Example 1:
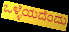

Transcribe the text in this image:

ಒಳ್ಳೆಯದೆಂದು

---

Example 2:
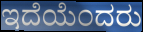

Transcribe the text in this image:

ಇದೆಯೆಂದರು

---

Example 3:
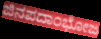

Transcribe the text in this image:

ಜಿನಪದಾಂಭೋಜ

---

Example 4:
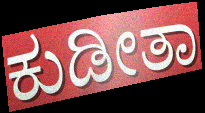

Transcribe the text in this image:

ಕುಡೀತಾ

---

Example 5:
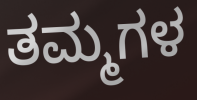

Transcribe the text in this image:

ತಮ್ಮಗಳ